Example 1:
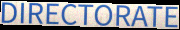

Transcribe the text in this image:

DIRECTORATE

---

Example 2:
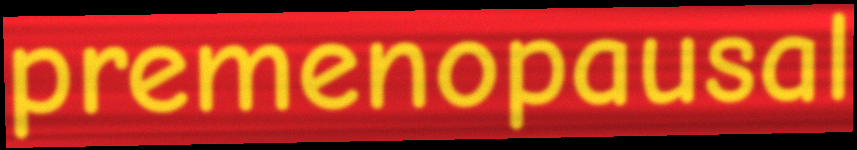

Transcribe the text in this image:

premenopausal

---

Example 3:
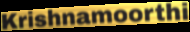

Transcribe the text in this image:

Krishnamoorthi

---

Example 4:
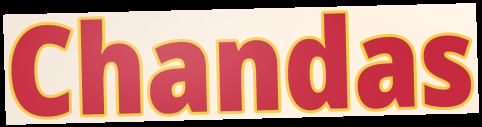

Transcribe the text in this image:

Chandas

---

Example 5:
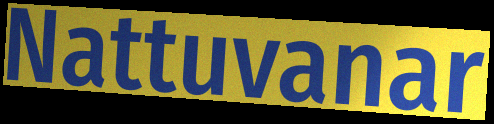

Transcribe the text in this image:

Nattuvanar